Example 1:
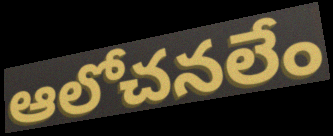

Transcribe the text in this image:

ఆలోచనలేం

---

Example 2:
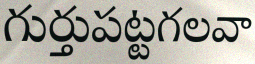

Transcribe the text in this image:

గుర్తుపట్టగలవా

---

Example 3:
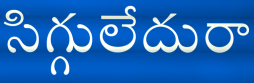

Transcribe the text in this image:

సిగ్గులేదురా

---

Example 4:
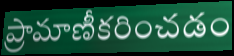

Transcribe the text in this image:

ప్రామాణీకరించడం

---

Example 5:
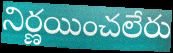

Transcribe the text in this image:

నిర్ణయించలేరు